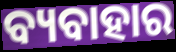
ବ୍ୟବାହାର